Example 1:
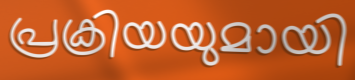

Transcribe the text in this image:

പ്രക്രിയയുമായി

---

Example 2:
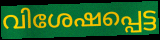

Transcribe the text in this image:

വിശേഷപ്പെട്ട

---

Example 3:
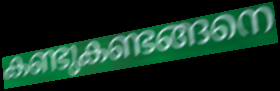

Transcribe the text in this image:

കണ്ടുകണ്ടങ്ങനെ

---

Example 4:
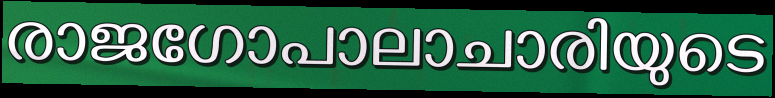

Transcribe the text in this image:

രാജഗോപാലാചാരിയുടെ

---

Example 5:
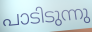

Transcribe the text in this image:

പാടിടുന്നു